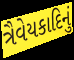
ત્રૈવેયકાદિનું